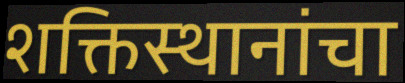
शक्तिस्थानांचा